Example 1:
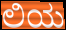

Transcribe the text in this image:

ಲಿಯ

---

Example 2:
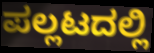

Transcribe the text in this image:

ಪಲ್ಲಟದಲ್ಲಿ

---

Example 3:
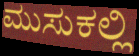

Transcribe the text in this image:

ಮುಸುಕಲ್ಲಿ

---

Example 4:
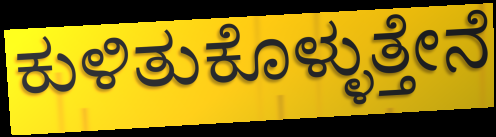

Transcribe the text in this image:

ಕುಳಿತುಕೊಳ್ಳುತ್ತೇನೆ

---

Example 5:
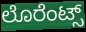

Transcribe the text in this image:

ಲೊರೆಂಟ್ಸ್